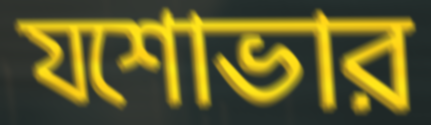
যশোভার